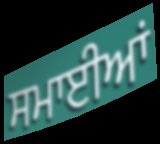
ਸਮਾਈਆਂ